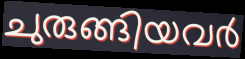
ചുരുങ്ങിയവർ